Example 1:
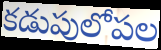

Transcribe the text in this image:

కడుపులోపల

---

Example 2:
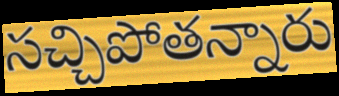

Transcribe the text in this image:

సచ్చిపోతన్నారు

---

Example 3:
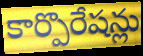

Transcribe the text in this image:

కార్పొరేషన్లు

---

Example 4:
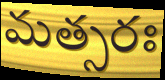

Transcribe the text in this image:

మత్సరః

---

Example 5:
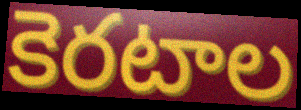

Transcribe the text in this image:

కెరటాల